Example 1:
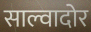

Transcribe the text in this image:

साल्वादोर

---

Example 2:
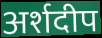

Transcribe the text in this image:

अर्शदीप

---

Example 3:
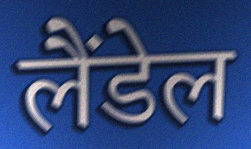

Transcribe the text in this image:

लैंडेल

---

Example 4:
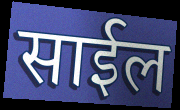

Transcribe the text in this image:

साईल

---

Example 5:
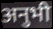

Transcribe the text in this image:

अनुभी